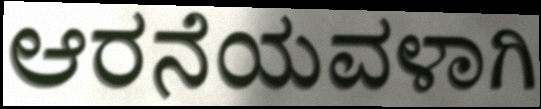
ಆರನೆಯವಳಾಗಿ